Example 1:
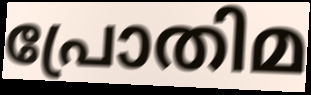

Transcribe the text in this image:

പ്രോതിമ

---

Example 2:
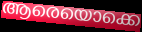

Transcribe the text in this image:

ആരെയൊക്കെ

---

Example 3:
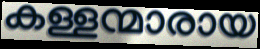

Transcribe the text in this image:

കള്ളന്മാരായ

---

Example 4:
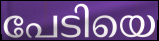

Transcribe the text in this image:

പേടിയെ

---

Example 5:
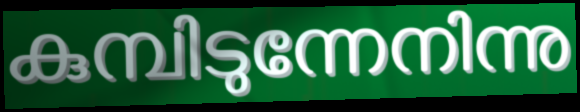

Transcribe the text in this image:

കുമ്പിടുന്നേനിന്നു